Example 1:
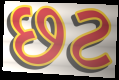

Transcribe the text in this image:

છટ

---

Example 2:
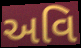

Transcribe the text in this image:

અવિ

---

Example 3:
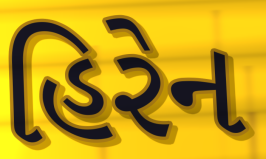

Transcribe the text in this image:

હિરેન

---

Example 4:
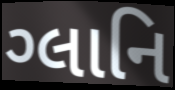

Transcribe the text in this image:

ગ્લાનિ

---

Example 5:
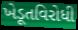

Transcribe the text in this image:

ખેડૂતવિરોધી